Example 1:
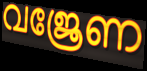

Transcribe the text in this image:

വജ്രേണ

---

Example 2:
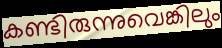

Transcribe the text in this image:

കണ്ടിരുന്നുവെങ്കിലും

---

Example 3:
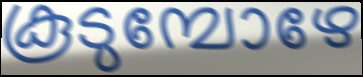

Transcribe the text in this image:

കൂടുമ്പോഴേ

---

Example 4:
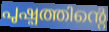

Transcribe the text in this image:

പുഷ്പത്തിന്റെ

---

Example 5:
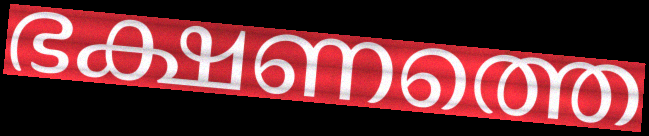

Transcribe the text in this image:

ഭക്ഷണത്തെ